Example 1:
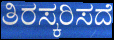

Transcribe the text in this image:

ತಿರಸ್ಕರಿಸದೆ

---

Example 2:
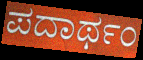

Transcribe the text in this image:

ಪದಾರ್ಥಂ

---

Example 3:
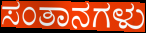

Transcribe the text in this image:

ಸಂತಾನಗಳು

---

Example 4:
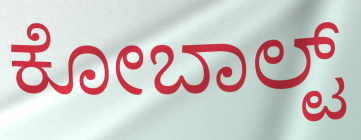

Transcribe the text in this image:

ಕೋಬಾಲ್ಟ್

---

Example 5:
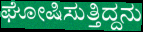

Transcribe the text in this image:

ಘೋಷಿಸುತ್ತಿದ್ದನು